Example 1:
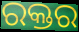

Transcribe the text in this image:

ରକ୍ତର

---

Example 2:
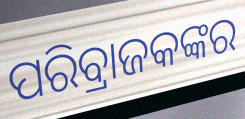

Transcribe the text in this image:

ପରିବ୍ରାଜକଙ୍କର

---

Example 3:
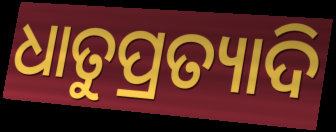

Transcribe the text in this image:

ଧାତୁପ୍ରତ୍ୟାଦି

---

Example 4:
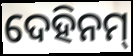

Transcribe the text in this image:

ଦେହିନମ୍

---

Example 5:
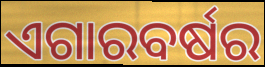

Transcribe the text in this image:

ଏଗାରବର୍ଷର